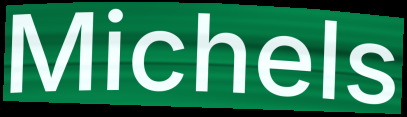
Michels